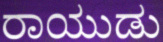
ರಾಯುಡು